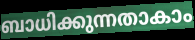
ബാധിക്കുന്നതാകാം